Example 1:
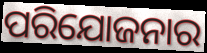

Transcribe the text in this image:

ପରିଯୋଜନାର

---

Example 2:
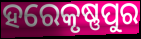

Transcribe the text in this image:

ହରେକୃଷ୍ଣପୁର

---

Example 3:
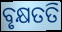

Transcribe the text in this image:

ବୃକ୍ଷତତି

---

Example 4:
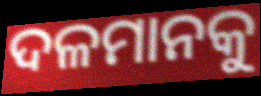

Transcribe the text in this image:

ଦଳମାନକୁ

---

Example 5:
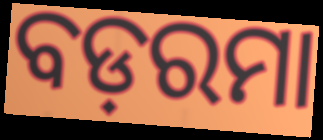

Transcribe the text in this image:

ବଡ଼ରମା